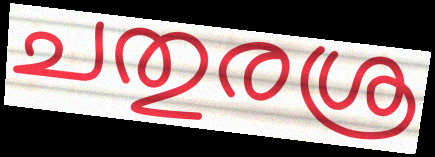
ചതുരശ്ര